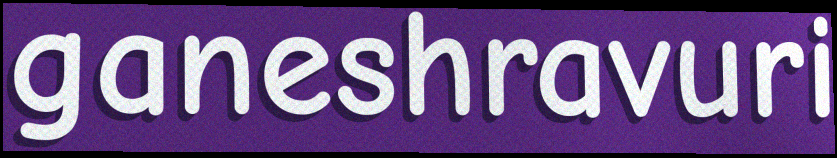
ganeshravuri